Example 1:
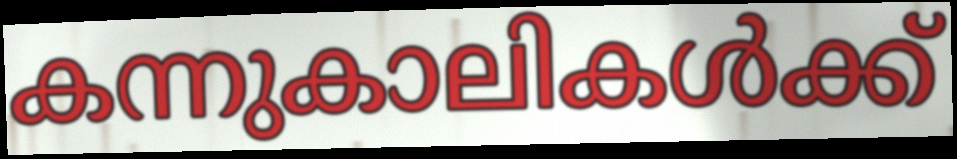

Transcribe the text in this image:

കന്നുകാലികൾക്ക്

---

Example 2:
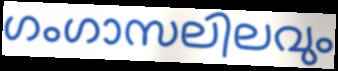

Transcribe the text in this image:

ഗംഗാസലിലവും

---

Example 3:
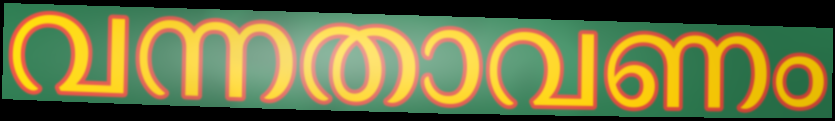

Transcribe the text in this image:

വന്നതാവണം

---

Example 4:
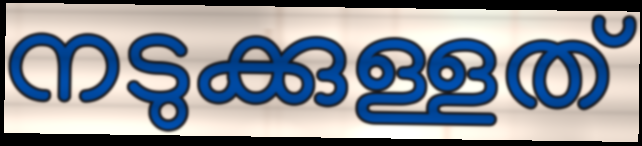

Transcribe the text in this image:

നടുക്കുള്ളത്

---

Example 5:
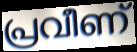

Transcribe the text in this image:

പ്രവീണ്